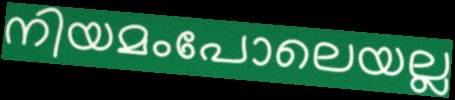
നിയമംപോലെയല്ല